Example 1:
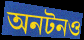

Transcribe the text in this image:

অনটনও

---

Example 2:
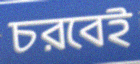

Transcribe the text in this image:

চরবেই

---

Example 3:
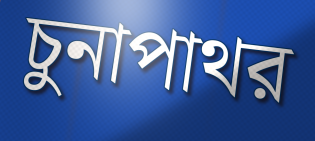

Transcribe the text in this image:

চুনাপাথর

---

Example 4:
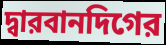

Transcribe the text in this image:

দ্বারবানদিগের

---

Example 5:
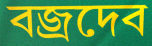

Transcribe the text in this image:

বজ্রদেব